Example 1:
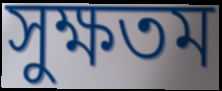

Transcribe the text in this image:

সুক্ষতম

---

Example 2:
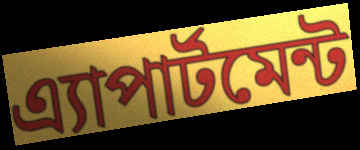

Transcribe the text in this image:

এ্যাপার্টমেন্ট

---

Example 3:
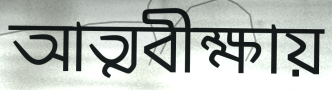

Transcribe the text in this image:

আত্মবীক্ষায়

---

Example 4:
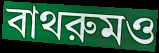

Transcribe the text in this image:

বাথরুমও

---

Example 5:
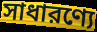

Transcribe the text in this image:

সাধারণ্যে